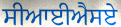
ਸੀਆਈਐਸਏ